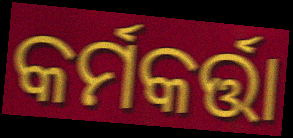
କର୍ମକର୍ତ୍ତା